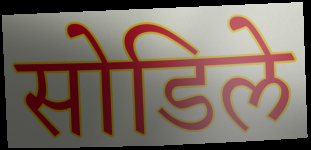
सोडिले